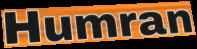
Humran